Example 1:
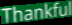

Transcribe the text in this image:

Thankful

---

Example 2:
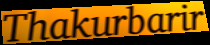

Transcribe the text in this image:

Thakurbarir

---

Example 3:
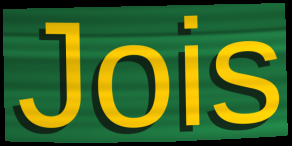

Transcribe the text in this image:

Jois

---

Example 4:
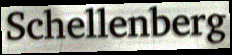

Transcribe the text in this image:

Schellenberg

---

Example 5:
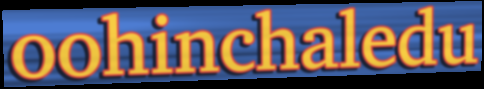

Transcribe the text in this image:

oohinchaledu